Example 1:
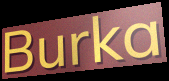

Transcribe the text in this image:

Burka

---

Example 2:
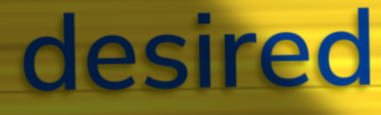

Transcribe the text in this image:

desired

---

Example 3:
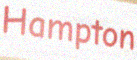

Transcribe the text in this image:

Hampton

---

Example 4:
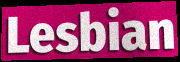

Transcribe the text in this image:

Lesbian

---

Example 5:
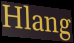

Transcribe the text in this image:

Hlang